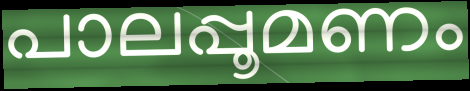
പാലപ്പൂമണം